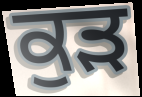
ਕੁੜ